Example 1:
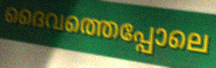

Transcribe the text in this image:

ദൈവത്തെപ്പോലെ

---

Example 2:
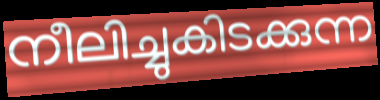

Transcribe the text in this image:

നീലിച്ചുകിടക്കുന്ന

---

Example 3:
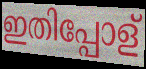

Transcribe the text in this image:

ഇതിപ്പോള്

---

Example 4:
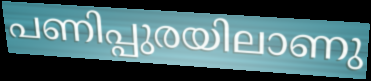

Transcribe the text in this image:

പണിപ്പുരയിലാണു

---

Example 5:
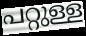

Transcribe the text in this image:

പറ്റുള്ള